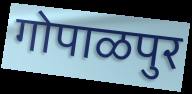
गोपाळपुर